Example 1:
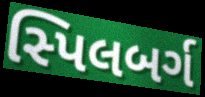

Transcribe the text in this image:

સ્પિલબર્ગ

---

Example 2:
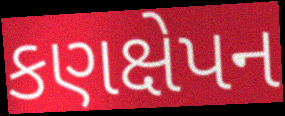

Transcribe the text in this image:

કણક્ષેપન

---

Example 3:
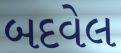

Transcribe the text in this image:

બદવેલ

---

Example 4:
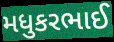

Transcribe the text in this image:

મધુકરભાઈ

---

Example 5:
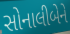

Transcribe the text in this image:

સોનાલીબેને